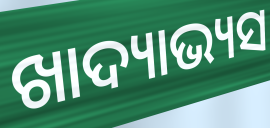
ଖାଦ୍ୟାଭ୍ୟସ